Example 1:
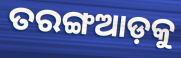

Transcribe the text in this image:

ତରଙ୍ଗଆଡ଼କୁ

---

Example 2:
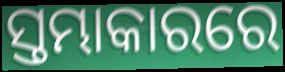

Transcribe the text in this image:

ସ୍ତମ୍ଭାକାରରେ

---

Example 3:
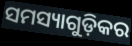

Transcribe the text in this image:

ସମସ୍ୟାଗୁଡ଼ିକର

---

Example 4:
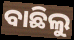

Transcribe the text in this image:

ବାଛିଲୁ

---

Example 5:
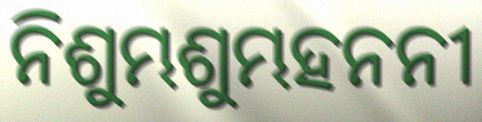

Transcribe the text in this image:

ନିଶୁମ୍ଭଶୁମ୍ଭହନନୀ